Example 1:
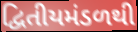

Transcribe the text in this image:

દ્વિતીયમંડળથી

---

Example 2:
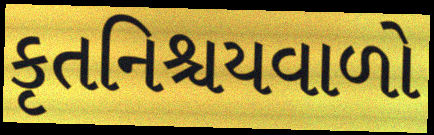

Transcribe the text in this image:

કૃતનિશ્ચયવાળો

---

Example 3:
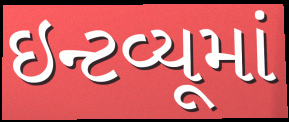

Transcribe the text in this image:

ઇન્ટવ્યૂમાં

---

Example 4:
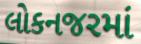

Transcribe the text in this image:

લોકનજરમાં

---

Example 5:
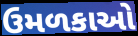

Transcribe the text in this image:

ઉમળકાઓ